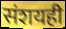
संशयही